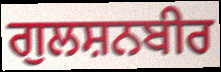
ਗੁਲਸ਼ਨਬੀਰ